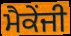
ਮੈਕੇਂਜੀ